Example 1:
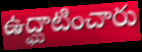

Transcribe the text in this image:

ఉద్ఘాటించారు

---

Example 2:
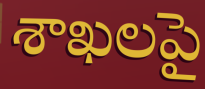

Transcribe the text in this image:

శాఖలపై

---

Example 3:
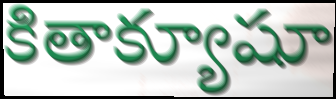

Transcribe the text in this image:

కితాక్యూషూ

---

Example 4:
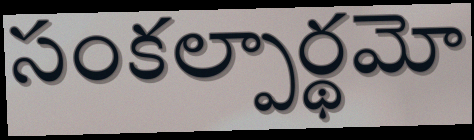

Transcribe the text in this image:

సంకల్పార్థమో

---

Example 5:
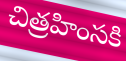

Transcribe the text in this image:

చిత్రహింసకి